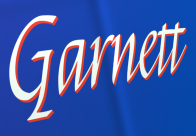
Garnett